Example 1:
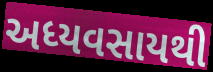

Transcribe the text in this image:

અધ્યવસાયથી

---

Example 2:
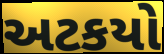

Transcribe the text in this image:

અટકયો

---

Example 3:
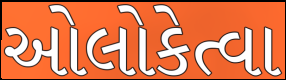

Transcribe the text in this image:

ઓલોકેત્વા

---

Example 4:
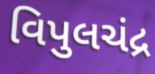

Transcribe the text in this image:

વિપુલચંદ્ર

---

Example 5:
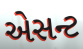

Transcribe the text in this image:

એસન્ટ